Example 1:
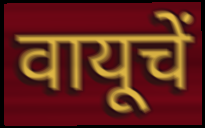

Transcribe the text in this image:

वायूचें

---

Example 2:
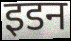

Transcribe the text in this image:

इडन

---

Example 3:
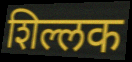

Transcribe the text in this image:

शिल्लक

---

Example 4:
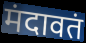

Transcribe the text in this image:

मंदावतं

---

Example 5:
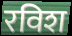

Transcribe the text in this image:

रविश